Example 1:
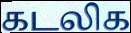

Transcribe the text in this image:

கடலிக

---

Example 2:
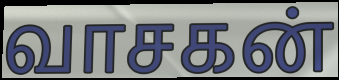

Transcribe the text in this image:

வாசகன்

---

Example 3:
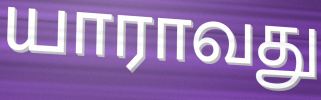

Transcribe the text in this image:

யாராவது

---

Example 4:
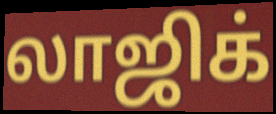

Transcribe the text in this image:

லாஜிக்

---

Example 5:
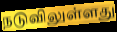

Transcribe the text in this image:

நடுவிலுள்ளது